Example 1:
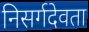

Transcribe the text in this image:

निसर्गदेवता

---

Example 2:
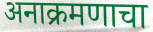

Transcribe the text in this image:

अनाक्रमणाचा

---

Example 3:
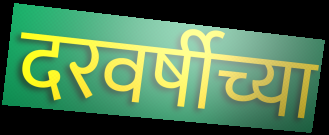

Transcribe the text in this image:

दरवर्षीच्या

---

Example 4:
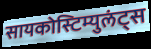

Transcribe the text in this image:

सायकोस्टिम्युलंट्स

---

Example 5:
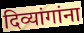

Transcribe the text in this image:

दिव्यांगांना